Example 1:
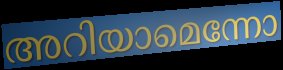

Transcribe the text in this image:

അറിയാമെന്നോ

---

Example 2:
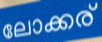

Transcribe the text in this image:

ലോക്കര്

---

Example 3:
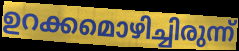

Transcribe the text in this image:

ഉറക്കമൊഴിച്ചിരുന്ന്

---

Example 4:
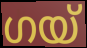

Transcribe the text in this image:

ഗയ്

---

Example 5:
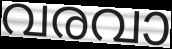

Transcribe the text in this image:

വരവാ